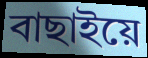
বাছাইয়ে